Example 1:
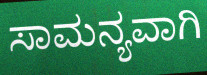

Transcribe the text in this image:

ಸಾಮನ್ಯವಾಗಿ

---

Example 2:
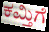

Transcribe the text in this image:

ಕಮ್ತಿಗೆ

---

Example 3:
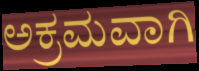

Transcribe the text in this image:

ಅಕ್ರಮವಾಗಿ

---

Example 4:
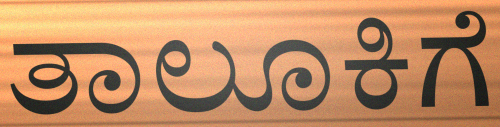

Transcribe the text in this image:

ತಾಲೂಕಿಗೆ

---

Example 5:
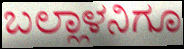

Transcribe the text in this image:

ಬಲ್ಲಾಳನಿಗೂ